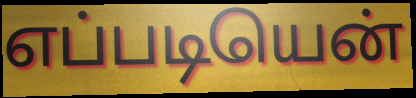
எப்படியென்